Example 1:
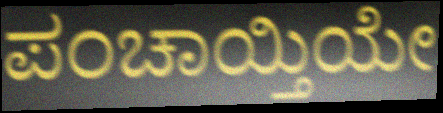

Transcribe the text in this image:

ಪಂಚಾಯ್ತಿಯೇ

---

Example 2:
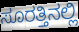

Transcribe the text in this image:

ಸೂರತ್ತಿನಲ್ಲಿ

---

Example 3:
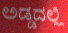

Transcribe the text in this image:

ಅಡ್ಡದಲ್ಲಿ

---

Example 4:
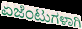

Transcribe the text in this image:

ಏಜೆಂಟುಗಳಾಗಿ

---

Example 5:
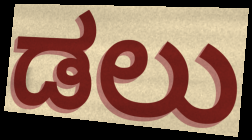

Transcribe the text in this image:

ಡಲು